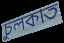
চুলকাত